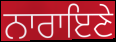
ਨਾਰਾਇਣੇ